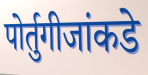
पोर्तुगीजांकडे